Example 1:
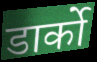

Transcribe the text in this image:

डार्को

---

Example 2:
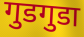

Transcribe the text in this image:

गुडगुडा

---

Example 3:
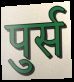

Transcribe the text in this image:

पुर्स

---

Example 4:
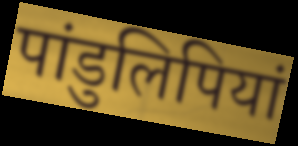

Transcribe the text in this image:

पांडुलिपियां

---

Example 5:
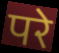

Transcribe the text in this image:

परे